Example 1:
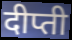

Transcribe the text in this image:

दीप्ती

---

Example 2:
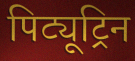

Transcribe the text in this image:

पिट्यूट्रिन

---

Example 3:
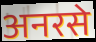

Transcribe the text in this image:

अनरसे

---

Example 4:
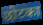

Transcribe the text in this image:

छोटका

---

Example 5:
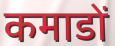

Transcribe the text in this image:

कमाडों